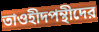
তাওহীদপন্থীদের